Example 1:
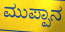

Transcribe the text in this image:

ಮುಪ್ಪಾನ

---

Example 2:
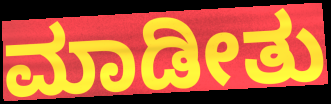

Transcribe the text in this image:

ಮಾಡೀತು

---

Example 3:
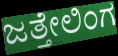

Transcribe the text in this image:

ಜತ್ತೇಲಿಂಗ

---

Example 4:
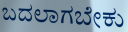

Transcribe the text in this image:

ಬದಲಾಗಬೇಕು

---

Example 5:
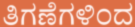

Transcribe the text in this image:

ತಿಗಣೆಗಳಿಂದ